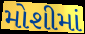
મોશીમાં